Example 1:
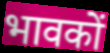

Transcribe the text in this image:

भावकों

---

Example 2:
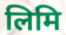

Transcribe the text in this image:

लिमि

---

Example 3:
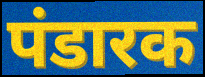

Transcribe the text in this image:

पंडारक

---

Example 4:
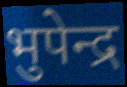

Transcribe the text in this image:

भुपेन्द्र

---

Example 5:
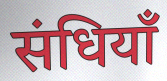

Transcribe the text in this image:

संधियाँ